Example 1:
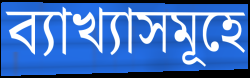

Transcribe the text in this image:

ব্যাখ্যাসমূহে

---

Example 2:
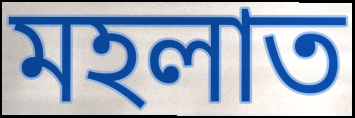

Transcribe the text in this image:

মহলাত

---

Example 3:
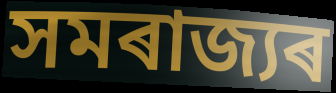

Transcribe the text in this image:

সমৰাজ্যৰ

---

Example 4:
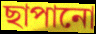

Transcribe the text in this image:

ছাপানো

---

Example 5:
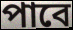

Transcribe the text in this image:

পাবে